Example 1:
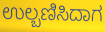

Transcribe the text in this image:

ಉಲ್ಬಣಿಸಿದಾಗ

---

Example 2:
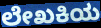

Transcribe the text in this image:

ಲೇಖಕಿಯ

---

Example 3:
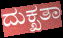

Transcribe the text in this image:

ದುಕ್ಖತಾ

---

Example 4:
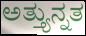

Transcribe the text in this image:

ಅತ್ತ್ಯುನ್ನತ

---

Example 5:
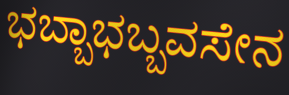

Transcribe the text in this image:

ಭಬ್ಬಾಭಬ್ಬವಸೇನ